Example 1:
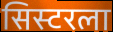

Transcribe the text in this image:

सिस्टरला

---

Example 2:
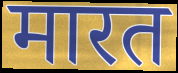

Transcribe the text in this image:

मारत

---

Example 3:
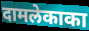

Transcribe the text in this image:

दामलेकाका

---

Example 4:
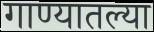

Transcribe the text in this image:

गाण्यातल्या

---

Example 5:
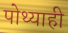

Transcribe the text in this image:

पोथ्याही